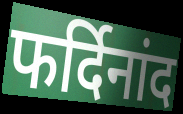
फर्दिनांद